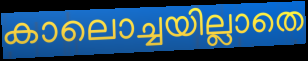
കാലൊച്ചയില്ലാതെ